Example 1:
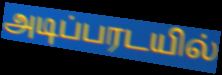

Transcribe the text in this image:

அடிப்பரடயில்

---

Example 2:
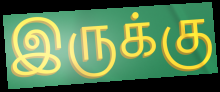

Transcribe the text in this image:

இருக்கு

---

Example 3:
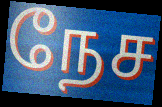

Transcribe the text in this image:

நேச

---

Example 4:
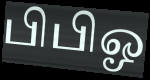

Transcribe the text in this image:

பிபிஓ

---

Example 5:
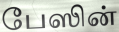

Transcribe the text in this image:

பேஸின்